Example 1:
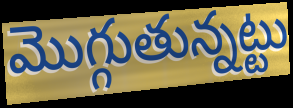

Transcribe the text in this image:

మొగ్గుతున్నట్టు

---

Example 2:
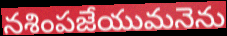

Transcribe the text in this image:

నశింపజేయుమనెను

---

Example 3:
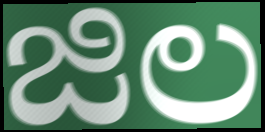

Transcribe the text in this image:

జిల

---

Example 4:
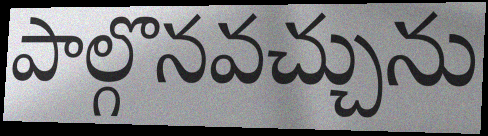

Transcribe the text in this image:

పాల్గొనవచ్చును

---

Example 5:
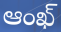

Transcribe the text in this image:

ఆంఖ్